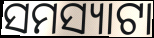
ସମସ୍ୟାଟା